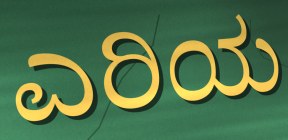
ಎರಿಯ